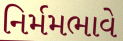
નિર્મમભાવે